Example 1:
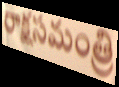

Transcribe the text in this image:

రాక్షసమంత్రి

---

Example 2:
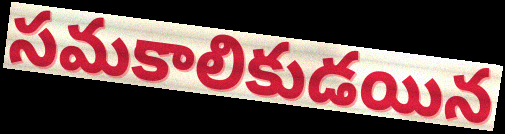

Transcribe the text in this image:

సమకాలికుడయిన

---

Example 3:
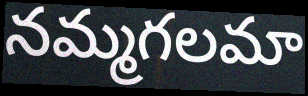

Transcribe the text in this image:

నమ్మగలమా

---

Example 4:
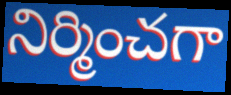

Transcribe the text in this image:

నిర్మించగా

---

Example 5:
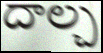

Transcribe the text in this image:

దాల్చ